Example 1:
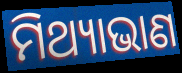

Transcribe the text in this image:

ମିଥ୍ୟାଭାଣ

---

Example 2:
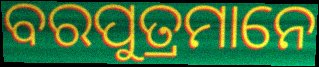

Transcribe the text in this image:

ବରପୁତ୍ରମାନେ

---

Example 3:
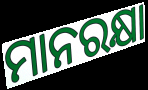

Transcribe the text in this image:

ମାନରକ୍ଷା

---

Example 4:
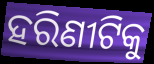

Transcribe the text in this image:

ହରିଣୀଟିକୁ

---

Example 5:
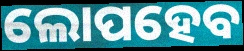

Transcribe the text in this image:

ଲୋପହେବ